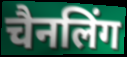
चैनलिंग